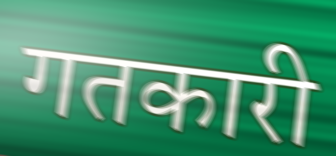
गतकारी